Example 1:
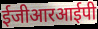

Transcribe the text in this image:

ईजीआरआईपी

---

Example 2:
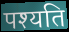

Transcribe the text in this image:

पश्यति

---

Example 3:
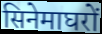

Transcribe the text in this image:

सिनेमाघरों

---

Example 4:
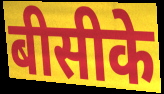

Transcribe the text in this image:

बीसीके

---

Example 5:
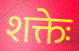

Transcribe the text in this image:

शक्तेः